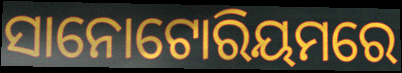
ସାନୋଟୋରିୟମରେ